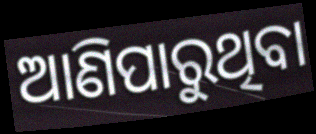
ଆଣିପାରୁଥିବା